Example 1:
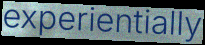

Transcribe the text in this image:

experientially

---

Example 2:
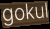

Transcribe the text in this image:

gokul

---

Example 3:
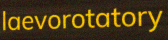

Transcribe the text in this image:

laevorotatory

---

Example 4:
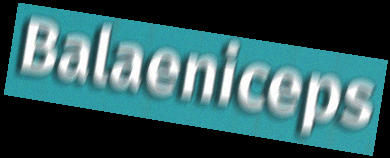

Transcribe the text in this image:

Balaeniceps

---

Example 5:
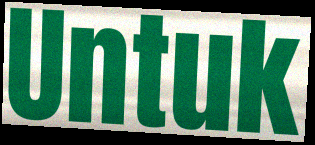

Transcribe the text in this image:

Untuk